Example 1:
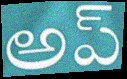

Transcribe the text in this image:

అప్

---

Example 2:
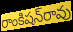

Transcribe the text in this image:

రాంకిషన్‌రావు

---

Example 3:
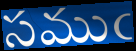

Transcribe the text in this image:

సముఁ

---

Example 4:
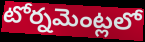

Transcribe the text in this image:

టోర్నమెంట్లలో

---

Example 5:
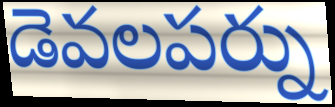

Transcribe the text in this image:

డెవలపర్ను